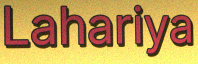
Lahariya